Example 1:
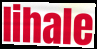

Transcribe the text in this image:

lihale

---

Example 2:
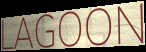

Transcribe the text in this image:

LAGOON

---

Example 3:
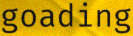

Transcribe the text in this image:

goading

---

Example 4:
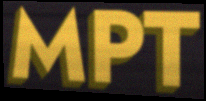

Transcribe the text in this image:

MPT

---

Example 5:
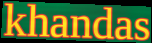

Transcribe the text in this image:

khandas